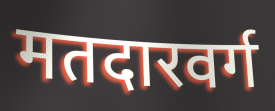
मतदारवर्ग